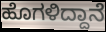
ಹೊಗಳಿದ್ದಾನೆ